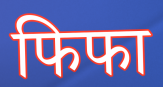
फिफा